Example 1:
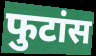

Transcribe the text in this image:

फुटांस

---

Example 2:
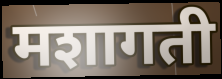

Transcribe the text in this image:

मशागती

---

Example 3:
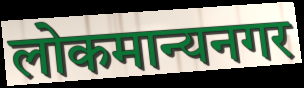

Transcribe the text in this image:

लोकमान्यनगर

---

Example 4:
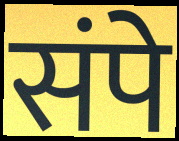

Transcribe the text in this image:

संपे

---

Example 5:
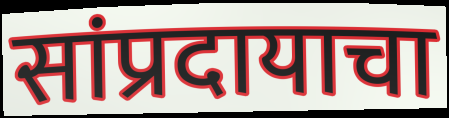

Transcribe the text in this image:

सांप्रदायाचा